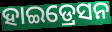
ହାଇଡ୍ରେସନ